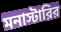
মনাস্টারির